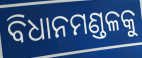
ବିଧାନମଣ୍ଡଳକୁ